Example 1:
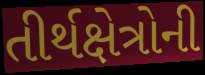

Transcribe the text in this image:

તીર્થક્ષેત્રોની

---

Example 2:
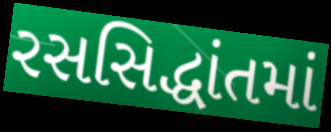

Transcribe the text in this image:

રસસિદ્ધાંતમાં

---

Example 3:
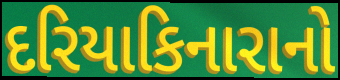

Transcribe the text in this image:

દરિયાકિનારાનો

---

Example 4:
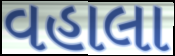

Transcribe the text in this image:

વહાલા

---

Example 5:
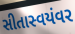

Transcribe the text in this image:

સીતાસ્વયંવર